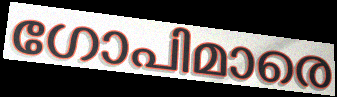
ഗോപിമാരെ